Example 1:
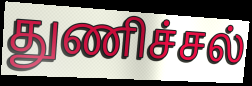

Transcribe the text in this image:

துணிச்சல்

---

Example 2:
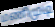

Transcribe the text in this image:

மணிமுடி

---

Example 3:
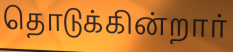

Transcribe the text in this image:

தொடுக்கின்றார்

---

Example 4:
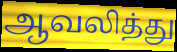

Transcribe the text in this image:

ஆவலித்து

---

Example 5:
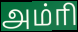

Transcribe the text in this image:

அம்ரி